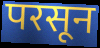
परसून